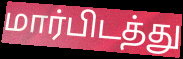
மார்பிடத்து